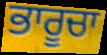
ਭਾਰੂਚਾ